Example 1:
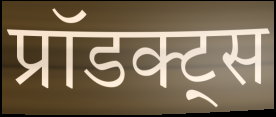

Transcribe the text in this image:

प्रॉडक्ट्स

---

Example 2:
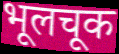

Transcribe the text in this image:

भूलचूक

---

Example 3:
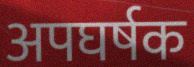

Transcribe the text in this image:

अपघर्षक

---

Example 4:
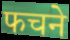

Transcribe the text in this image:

फचने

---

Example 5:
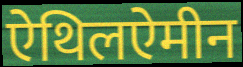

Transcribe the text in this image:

ऐथिलऐमीन